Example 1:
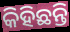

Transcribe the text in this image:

କିହିଛନ୍ତି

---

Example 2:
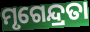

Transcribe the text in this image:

ମୃଗେନ୍ଦ୍ରତା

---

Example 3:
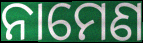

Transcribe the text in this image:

ନାମେଣ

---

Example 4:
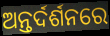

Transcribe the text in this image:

ଅନ୍ତର୍ଦର୍ଶନରେ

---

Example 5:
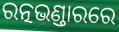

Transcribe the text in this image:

ରତ୍ନଭଣ୍ଡାରରେ